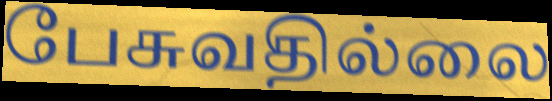
பேசுவதில்லை